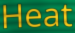
Heat